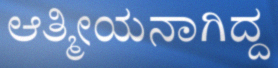
ಆತ್ಮೀಯನಾಗಿದ್ದ